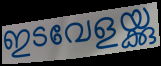
ഇടവേളയ്ക്കു